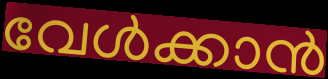
വേൾക്കാൻ